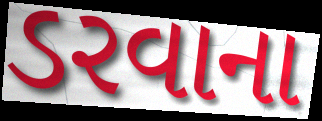
ડરવાના